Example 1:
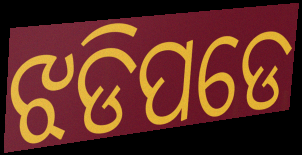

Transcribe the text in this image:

ଝଡିପଡେ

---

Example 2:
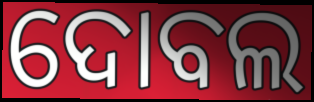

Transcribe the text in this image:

ଦୋବଲ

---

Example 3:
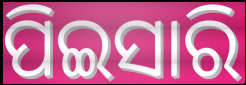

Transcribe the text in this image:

ପିଇସାରି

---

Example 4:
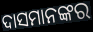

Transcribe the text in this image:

ଦାସମାନଙ୍କର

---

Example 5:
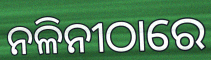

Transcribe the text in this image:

ନଳିନୀଠାରେ